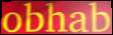
obhab